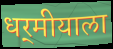
धर्मीयाला